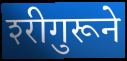
श्रीगुरूने